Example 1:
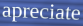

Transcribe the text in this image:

apreciate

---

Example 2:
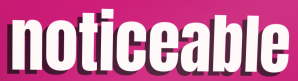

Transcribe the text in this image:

noticeable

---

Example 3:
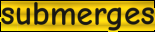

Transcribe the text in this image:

submerges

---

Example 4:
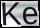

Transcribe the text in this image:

Ke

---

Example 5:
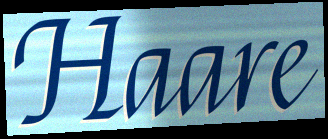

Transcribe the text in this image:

Haare